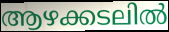
ആഴക്കടലിൽ